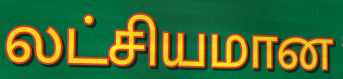
லட்சியமான